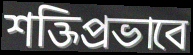
শক্তিপ্রভাবে